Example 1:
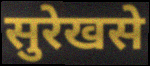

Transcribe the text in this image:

सुरेखसे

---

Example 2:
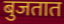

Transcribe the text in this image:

बुजतात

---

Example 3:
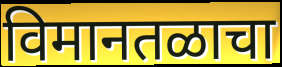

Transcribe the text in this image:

विमानतळाचा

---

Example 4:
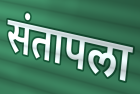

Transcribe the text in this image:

संतापला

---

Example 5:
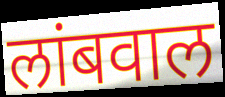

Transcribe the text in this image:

लांबवाल